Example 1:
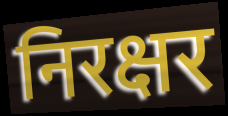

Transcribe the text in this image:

निरक्षर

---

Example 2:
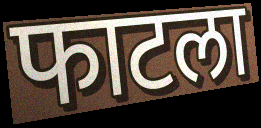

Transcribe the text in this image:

फाटला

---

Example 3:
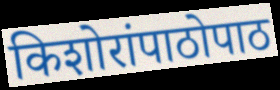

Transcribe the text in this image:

किशोरांपाठोपाठ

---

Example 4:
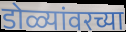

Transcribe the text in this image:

डोळ्यांवरच्या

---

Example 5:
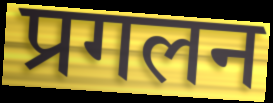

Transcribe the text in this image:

प्रगलन